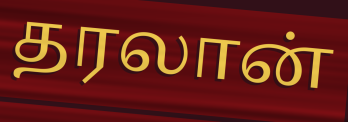
தரலான்